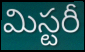
మిస్టరీ